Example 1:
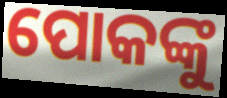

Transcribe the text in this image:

ପୋକଙ୍କୁ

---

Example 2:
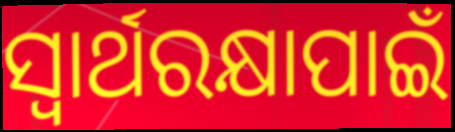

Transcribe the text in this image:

ସ୍ୱାର୍ଥରକ୍ଷାପାଇଁ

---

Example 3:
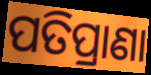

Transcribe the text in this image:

ପତିପ୍ରାଣା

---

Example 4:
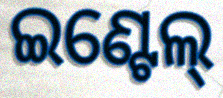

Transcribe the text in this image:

ଇଣ୍ଟେଲ୍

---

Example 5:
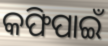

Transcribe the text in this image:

କଫିପାଇଁ